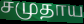
சமுதாய